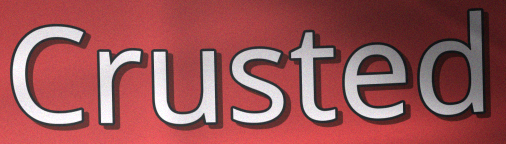
Crusted